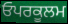
ਓਪਰਕੂਲਮ